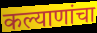
कल्याणांचा